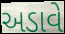
અડાવે